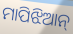
ମାପିଝିଆନ୍